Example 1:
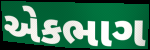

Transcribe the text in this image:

એકભાગ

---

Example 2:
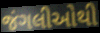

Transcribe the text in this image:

જંગલીઓથી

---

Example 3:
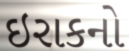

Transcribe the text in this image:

ઇરાકનો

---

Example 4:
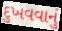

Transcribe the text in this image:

દુખવવાનું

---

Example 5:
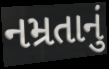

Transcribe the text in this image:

નમ્રતાનું